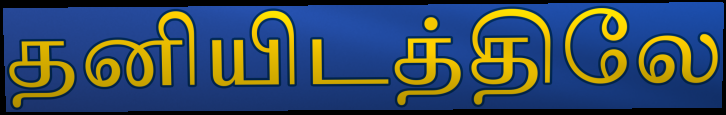
தனியிடத்திலே